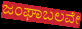
ಜಂಘಾಬಲವೇ